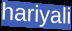
hariyali